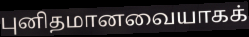
புனிதமானவையாகக்